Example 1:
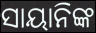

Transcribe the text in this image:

ସାୟାନିଙ୍କ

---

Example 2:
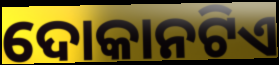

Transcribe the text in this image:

ଦୋକାନଟିଏ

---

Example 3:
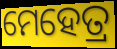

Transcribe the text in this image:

ମେହେତ୍ର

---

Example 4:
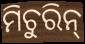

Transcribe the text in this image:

ମିଚୁରିନ୍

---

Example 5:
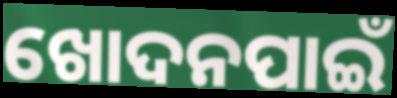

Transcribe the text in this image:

ଖୋଦନପାଇଁ